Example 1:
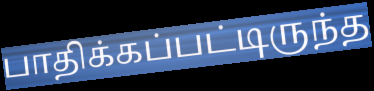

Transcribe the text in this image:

பாதிக்கப்பட்டிருந்த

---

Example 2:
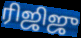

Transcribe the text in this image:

ரிஜிஜு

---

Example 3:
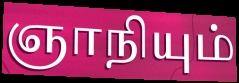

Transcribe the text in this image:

ஞாநியும்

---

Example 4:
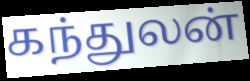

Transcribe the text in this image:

கந்துலன்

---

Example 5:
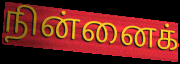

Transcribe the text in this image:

நின்னைக்